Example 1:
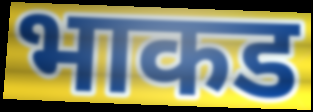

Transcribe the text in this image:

भाकड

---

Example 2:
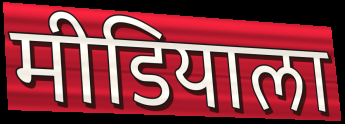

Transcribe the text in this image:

मीडियाला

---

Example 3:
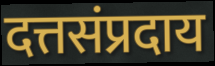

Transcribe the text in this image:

दत्तसंप्रदाय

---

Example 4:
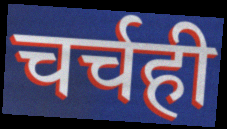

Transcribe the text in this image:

चर्चही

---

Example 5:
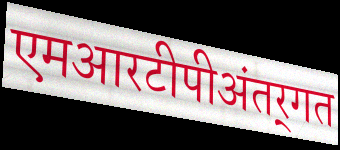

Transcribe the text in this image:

एमआरटीपीअंतर्गत